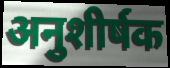
अनुशीर्षक